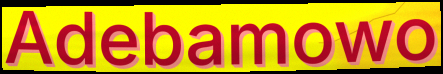
Adebamowo